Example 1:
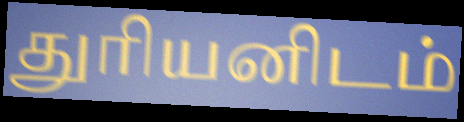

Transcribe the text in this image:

துரியனிடம்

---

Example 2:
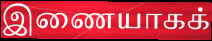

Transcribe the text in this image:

இணையாகக்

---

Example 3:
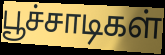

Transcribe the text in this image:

பூச்சாடிகள்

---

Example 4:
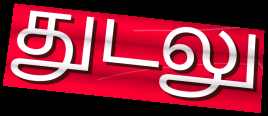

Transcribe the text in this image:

துடலு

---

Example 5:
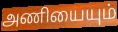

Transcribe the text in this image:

அணியையும்